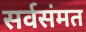
सर्वसंमत